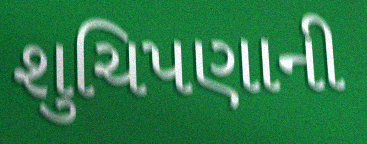
શુચિપણાની